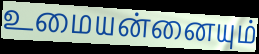
உமையன்னையும்